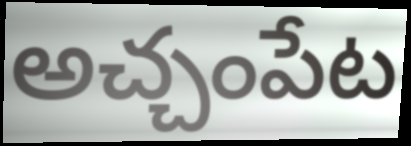
అచ్చంపేట